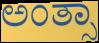
ಅಂತ್ಸಾ